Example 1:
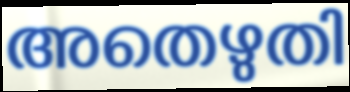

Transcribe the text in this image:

അതെഴുതി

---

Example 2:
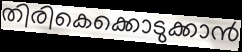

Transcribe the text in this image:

തിരികെക്കൊടുക്കാൻ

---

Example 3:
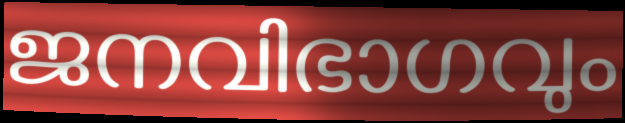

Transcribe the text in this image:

ജനവിഭാഗവും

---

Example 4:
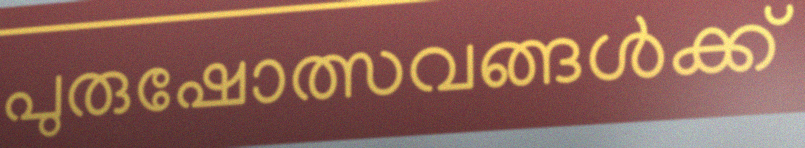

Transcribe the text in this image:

പുരുഷോത്സവങ്ങൾക്ക്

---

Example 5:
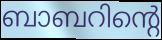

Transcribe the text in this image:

ബാബറിന്റെ